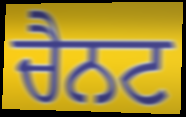
ਚੈਨਟ